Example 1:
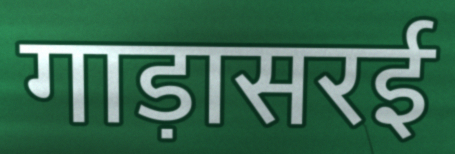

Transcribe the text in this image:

गाड़ासरई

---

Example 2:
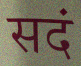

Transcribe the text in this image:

सदं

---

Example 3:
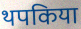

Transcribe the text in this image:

थपकिया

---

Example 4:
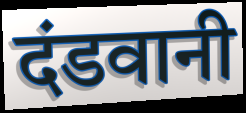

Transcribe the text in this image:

दंडवानी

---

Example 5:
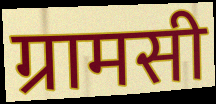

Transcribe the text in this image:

ग्रामसी